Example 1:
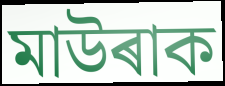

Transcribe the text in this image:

মাউৰাক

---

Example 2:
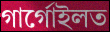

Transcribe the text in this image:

গাৰ্গোইলত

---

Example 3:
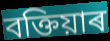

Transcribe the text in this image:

বক্তিয়াৰ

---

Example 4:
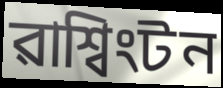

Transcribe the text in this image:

ৱাশ্বিংটন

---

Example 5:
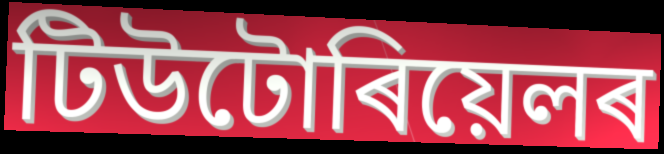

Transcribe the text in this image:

টিউটোৰিয়েলৰ